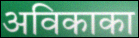
अविकाका